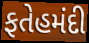
ફતેહમંદી